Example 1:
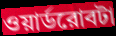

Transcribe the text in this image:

ওয়ার্ডরোবটা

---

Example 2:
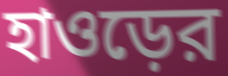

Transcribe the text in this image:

হাওড়ের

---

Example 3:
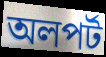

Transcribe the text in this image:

অলপর্ট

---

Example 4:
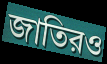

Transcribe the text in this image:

জাতিরও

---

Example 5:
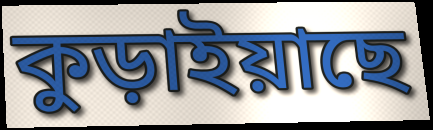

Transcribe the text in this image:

কুড়াইয়াছে